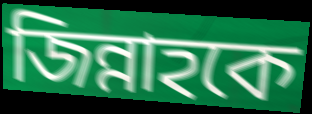
জিন্নাহকে